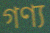
গণ্য